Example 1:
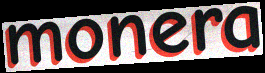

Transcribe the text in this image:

monera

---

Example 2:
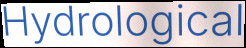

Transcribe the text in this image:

Hydrological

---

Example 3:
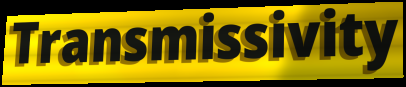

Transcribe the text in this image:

Transmissivity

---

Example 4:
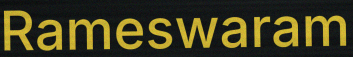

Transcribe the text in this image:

Rameswaram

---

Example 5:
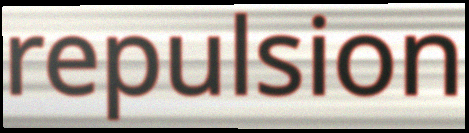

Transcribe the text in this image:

repulsion